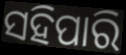
ସହିପାରି